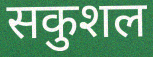
सकुशल